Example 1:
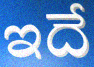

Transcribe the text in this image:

ఇదే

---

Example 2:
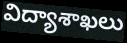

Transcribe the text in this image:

విద్యాశాఖలు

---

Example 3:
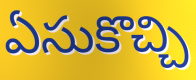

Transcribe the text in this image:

ఏసుకొచ్చి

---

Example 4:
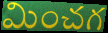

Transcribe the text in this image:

మించగ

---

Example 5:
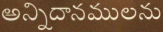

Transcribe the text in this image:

అన్నిదానములను